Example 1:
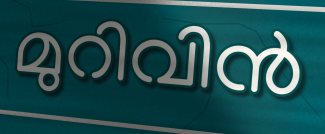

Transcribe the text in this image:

മുറിവിൻ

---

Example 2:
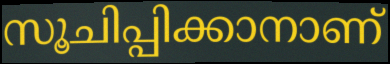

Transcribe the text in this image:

സൂചിപ്പിക്കാനാണ്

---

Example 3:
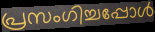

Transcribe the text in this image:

പ്രസംഗിച്ചപ്പോൾ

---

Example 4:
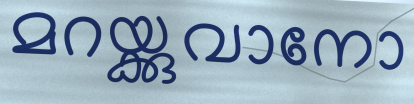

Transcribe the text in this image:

മറയ്ക്കുവാനോ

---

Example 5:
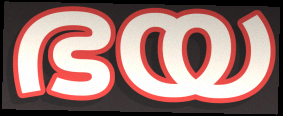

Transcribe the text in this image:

ഭയ